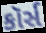
કૉર્સ